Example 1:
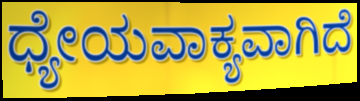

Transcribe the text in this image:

ಧ್ಯೇಯವಾಕ್ಯವಾಗಿದೆ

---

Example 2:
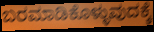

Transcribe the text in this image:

ಬರಮಾಡಿಕೊಳ್ಳುವುದಕ್ಕೆ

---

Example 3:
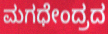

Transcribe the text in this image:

ಮಗಧೇಂದ್ರದ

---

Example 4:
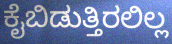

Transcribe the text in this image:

ಕೈಬಿಡುತ್ತಿರಲಿಲ್ಲ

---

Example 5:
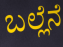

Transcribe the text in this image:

ಬಲ್ಲೆನೆ